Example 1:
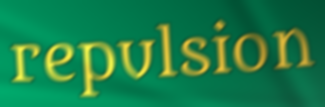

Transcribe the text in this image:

repulsion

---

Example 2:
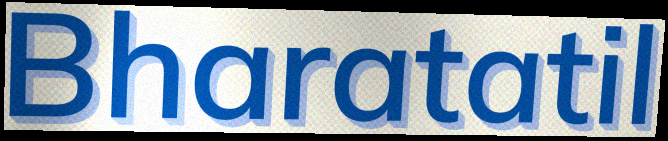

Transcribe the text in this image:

Bharatatil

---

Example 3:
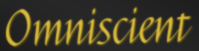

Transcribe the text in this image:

Omniscient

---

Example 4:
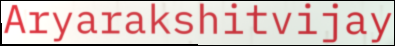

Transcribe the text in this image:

Aryarakshitvijay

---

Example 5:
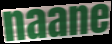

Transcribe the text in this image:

naane